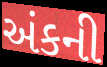
અંકની